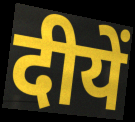
दीयें